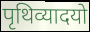
पृथिव्यादयो